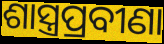
ଶାସ୍ତ୍ରପ୍ରବୀଣା